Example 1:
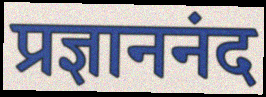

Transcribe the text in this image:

प्रज्ञाननंद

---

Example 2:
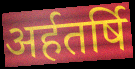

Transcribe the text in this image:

अर्हतर्षि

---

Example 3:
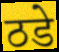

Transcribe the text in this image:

ठडे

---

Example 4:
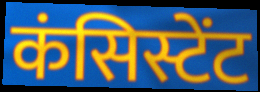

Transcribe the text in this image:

कंसिस्टेंट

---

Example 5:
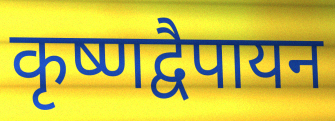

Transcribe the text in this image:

कृष्णद्वैपायन